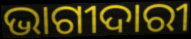
ଭାଗୀଦାରୀ